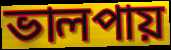
ভালপায়